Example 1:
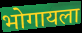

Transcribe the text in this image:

भोगायला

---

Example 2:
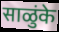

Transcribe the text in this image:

साळुंके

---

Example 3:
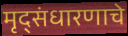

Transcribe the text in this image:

मृद्संधारणाचे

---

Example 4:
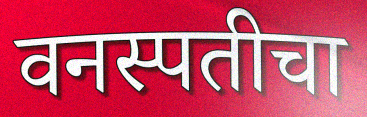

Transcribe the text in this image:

वनस्पतीचा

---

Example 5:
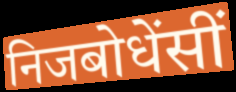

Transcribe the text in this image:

निजबोधेंसीं